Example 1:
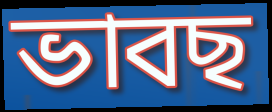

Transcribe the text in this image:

ভাবছ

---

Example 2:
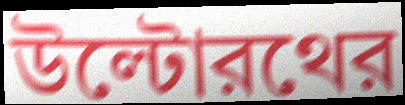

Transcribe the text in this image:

উল্টোরথের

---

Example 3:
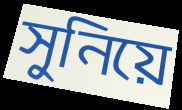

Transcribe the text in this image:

সুনিয়ে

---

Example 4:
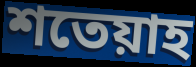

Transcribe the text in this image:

শতেয়াহ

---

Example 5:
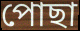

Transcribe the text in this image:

পোছা